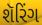
શૅરિંગ